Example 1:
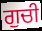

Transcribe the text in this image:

ਗੁਚੀ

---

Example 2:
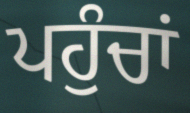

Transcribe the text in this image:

ਪਹੁੰਚਾਂ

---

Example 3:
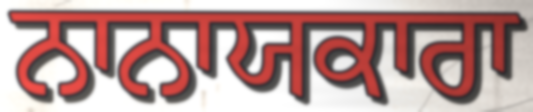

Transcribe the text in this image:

ਨਾਨਾਯਕਾਰਾ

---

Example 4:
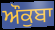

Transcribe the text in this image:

ਔਕੁਬਾ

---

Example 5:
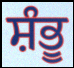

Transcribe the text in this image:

ਸ਼ੰਭੂ